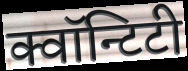
क्वॉन्टिटी